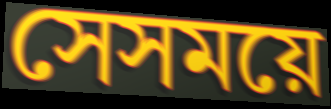
সেসময়ে